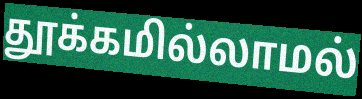
தூக்கமில்லாமல்